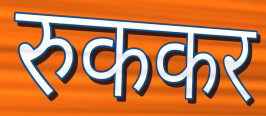
रुककर